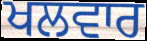
ਖਲਵਾਰ